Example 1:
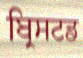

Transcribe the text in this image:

ਬ੍ਰਿਸਟਡ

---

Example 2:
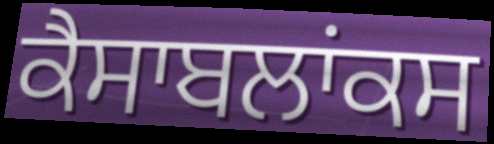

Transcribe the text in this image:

ਕੈਸਾਬਲਾਂਕਸ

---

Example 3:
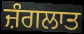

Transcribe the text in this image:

ਜ਼ੰਗਲਾਤ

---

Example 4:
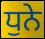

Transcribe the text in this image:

ਧੁਨੇ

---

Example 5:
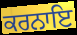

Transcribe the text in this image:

ਕਰਨਾਇ